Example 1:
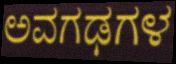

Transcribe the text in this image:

ಅವಗಢಗಳ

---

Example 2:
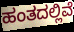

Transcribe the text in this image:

ಹಂತದಲ್ಲಿವೆ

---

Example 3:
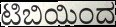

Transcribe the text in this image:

ಟಿಬಿಯಿಂದ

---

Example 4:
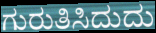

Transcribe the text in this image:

ಗುರುತಿಸಿದುದು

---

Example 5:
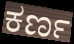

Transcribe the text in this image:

ಕರ್ಣ